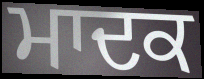
ਮਾਦਕ